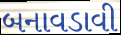
બનાવડાવી